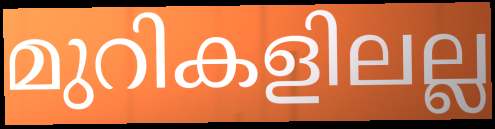
മുറികളിലല്ല